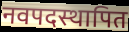
नवपदस्थापित